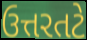
ઉત્તરતટે